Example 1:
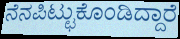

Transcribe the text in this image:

ನೆನಪಿಟ್ಟುಕೊಂಡಿದ್ದಾರೆ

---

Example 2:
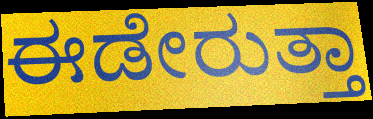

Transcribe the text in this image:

ಈಡೇರುತ್ತಾ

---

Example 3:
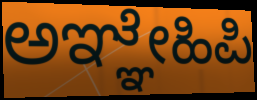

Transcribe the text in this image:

ಅಞ್ಞೇಹಿಪಿ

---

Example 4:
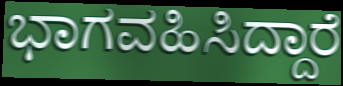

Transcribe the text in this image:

ಭಾಗವಹಿಸಿದ್ದಾರೆ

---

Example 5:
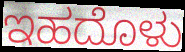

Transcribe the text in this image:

ಇಹದೊಳು